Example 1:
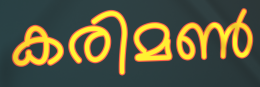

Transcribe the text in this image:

കരിമൺ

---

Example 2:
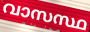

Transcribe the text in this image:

വാസസ്ഥ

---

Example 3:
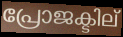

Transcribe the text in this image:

പ്രോജക്ടില്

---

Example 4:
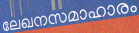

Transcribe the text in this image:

ലേഖനസമാഹാരം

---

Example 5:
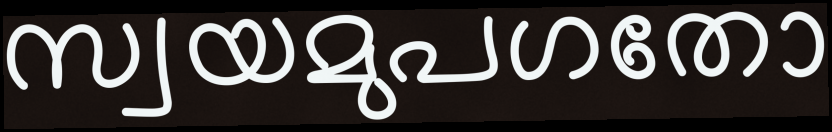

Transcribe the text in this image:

സ്വയമുപഗതോ